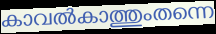
കാവൽകാത്തുംതന്നെ